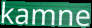
kamne